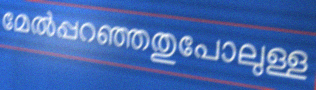
മേൽപ്പറഞ്ഞതുപോലുള്ള